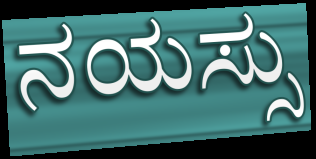
ನಯಸ್ಸು